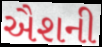
ઐશની